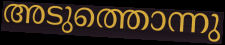
അടുത്തൊന്നു